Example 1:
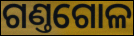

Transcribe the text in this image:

ଗଣ୍ତଗୋଳ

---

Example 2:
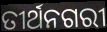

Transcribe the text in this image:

ତୀର୍ଥନଗରୀ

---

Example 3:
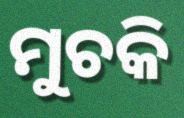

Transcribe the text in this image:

ମୁଚକି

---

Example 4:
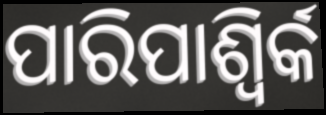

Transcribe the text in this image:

ପାରିପାଶ୍ୱିର୍କ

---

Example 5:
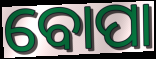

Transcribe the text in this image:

ବୋପା